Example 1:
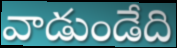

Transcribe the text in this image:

వాడుండేది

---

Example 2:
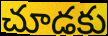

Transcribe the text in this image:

చూడకు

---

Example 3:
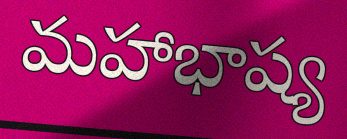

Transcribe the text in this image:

మహాభాష్య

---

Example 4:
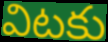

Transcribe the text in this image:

విటకు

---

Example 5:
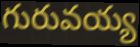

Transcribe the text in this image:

గురువయ్య